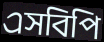
এসবিপি